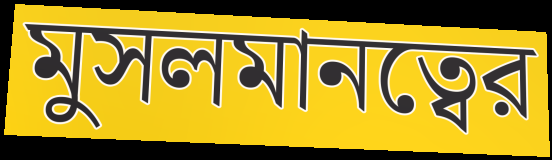
মুসলমানত্বের